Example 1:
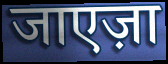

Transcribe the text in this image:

जाएज़ा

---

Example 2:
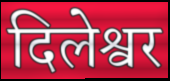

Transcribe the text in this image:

दिलेश्वर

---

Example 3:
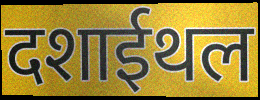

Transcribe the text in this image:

दशाईथल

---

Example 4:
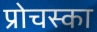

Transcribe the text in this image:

प्रोचस्का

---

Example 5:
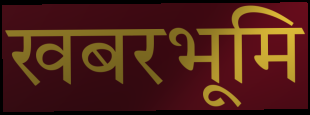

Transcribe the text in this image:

खबरभूमि